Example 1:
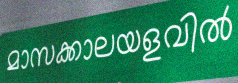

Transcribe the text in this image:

മാസക്കാലയളവിൽ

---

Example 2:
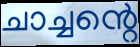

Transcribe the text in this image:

ചാച്ചന്റെ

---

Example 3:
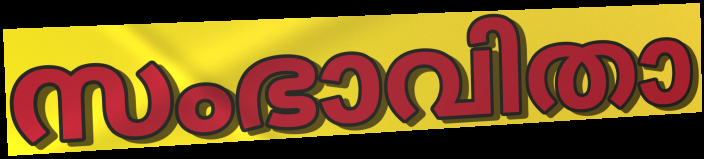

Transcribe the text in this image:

സംഭാവിതാ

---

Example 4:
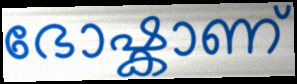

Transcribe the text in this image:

ഭോഷ്കാണ്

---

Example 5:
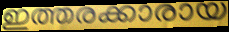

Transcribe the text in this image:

ഇത്തരക്കാരായ